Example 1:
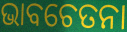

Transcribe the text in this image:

ଭାବଚେତନା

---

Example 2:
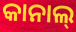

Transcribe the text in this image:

କାନାଲ୍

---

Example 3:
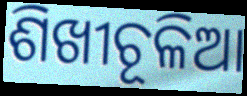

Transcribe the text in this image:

ଶିଖୀଚୂଳିଆ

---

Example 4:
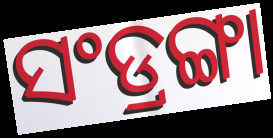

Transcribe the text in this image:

ସଂଡ୍ରଙ୍ଗା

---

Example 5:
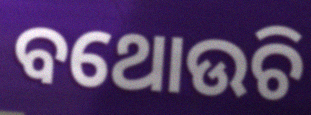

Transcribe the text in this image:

ବଥୋଉଚି